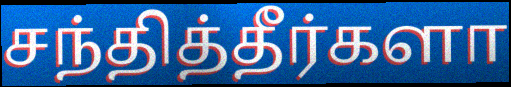
சந்தித்தீர்களா